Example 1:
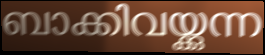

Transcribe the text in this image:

ബാക്കിവയ്ക്കുന്ന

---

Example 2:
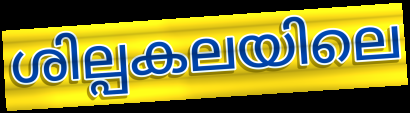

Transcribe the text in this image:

ശില്പകലയിലെ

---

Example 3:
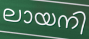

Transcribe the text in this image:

ലായനി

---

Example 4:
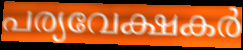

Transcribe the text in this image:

പര്യവേക്ഷകർ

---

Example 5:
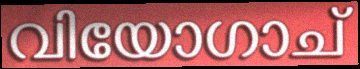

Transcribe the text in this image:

വിയോഗാച്